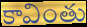
కావింతు